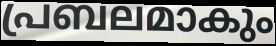
പ്രബലമാകും